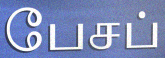
பேசப்